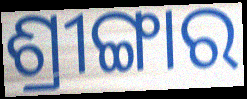
ଶ୍ରୀଙ୍ଗାର